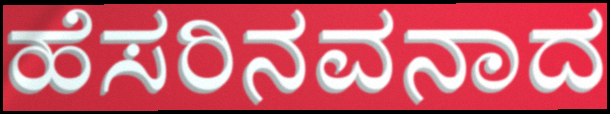
ಹೆಸರಿನವನಾದ